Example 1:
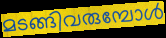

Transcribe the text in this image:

മടങ്ങിവരുമ്പോൾ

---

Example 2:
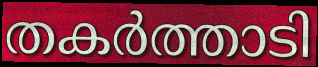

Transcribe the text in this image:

തകർത്താടി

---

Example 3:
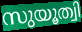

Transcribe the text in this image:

സുയൂത്വി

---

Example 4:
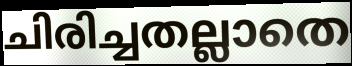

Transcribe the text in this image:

ചിരിച്ചതല്ലാതെ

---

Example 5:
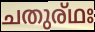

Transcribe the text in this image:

ചതുര്ഥഃ